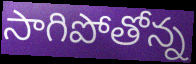
సాగిపోతోన్న